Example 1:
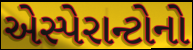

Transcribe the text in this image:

એસ્પેરાન્ટોનો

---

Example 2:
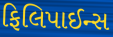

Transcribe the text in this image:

ફિલિપાઈન્સ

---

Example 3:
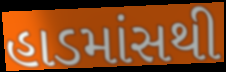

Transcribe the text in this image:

હાડમાંસથી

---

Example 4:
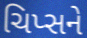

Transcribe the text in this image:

ચિપ્સને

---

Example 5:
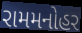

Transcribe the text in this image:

રામમનોહર